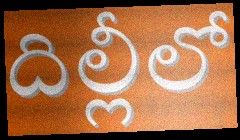
దిల్లీలో